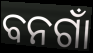
ବନଗାଁ